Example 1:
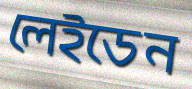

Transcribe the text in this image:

লেইডেন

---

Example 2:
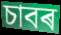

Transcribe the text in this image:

চাবৰ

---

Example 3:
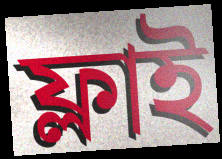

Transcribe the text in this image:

ফ্লাই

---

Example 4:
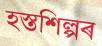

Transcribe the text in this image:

হস্তশিল্পৰ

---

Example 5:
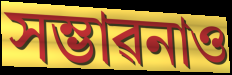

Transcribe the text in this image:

সম্ভাৱনাও